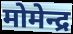
मोमेन्द्र